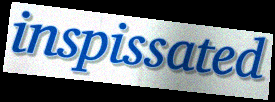
inspissated